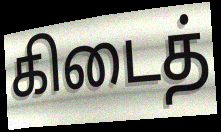
கிடைத்